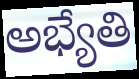
అభ్యేతి